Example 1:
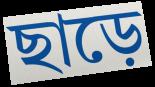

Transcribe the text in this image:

ছাড়ে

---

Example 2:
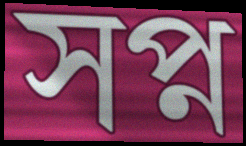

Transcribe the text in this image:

সপ্ন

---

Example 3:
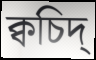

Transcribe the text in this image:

ক্বচিদ্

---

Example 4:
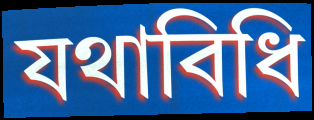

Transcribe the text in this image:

যথাবিধি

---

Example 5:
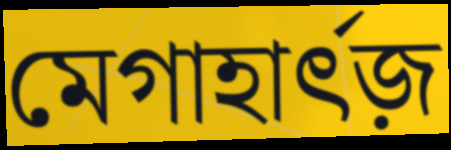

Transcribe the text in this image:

মেগাহার্ৎজ়